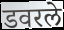
डवरले